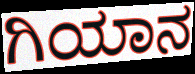
ಗಿಯಾನ